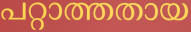
പറ്റാത്തതായ